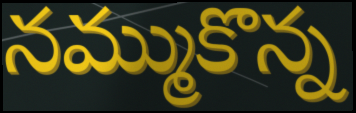
నమ్ముకొన్న